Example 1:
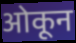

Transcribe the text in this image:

ओकून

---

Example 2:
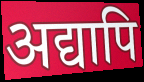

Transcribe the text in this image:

अद्यापि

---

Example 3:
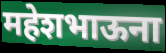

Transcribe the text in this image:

महेशभाऊना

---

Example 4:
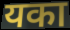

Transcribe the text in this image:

यका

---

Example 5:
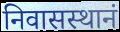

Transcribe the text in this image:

निवासस्थानं